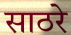
साठरे